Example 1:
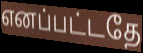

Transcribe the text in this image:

எனப்பட்டதே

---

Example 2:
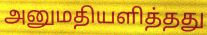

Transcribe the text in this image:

அனுமதியளித்தது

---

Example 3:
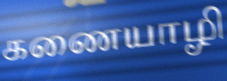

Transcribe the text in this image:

கணையாழி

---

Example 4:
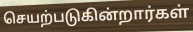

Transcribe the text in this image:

செயற்படுகின்றார்கள்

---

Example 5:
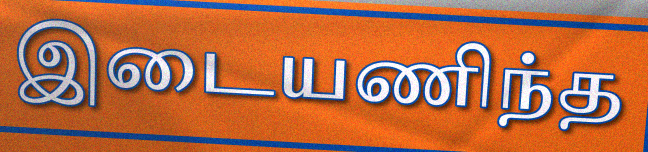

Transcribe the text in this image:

இடையணிந்த